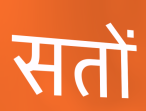
सतों